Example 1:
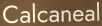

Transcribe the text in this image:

Calcaneal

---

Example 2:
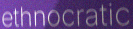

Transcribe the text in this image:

ethnocratic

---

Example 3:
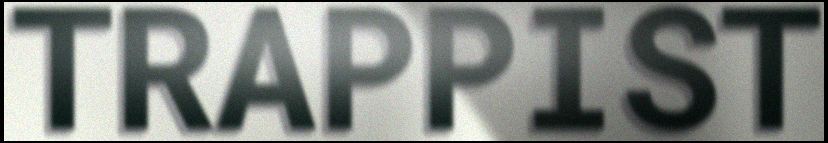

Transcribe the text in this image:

TRAPPIST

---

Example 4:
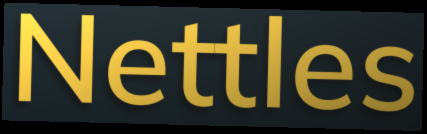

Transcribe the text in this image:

Nettles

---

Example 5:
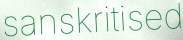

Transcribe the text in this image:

sanskritised